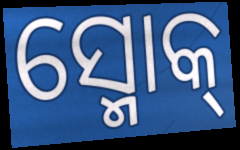
ସ୍ମୋକ୍